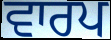
ਵਾਰਪ